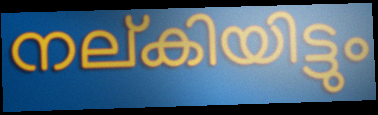
നല്കിയിട്ടും